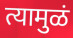
त्यामुळं